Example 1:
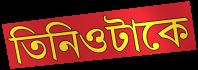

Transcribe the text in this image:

তিনিওটাকে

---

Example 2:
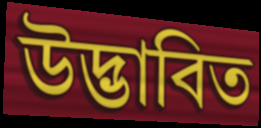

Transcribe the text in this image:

উদ্ভাবিত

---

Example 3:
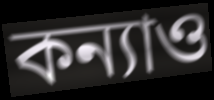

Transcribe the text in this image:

কন্যাও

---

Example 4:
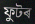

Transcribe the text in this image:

ফুটৰ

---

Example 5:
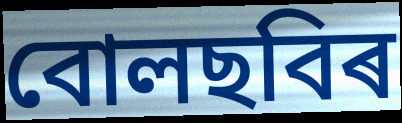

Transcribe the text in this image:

বোলছবিৰ